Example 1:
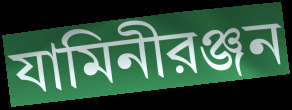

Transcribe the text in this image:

যামিনীরঞ্জন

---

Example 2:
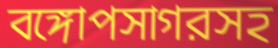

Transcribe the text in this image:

বঙ্গোপসাগরসহ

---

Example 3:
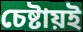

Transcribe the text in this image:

চেষ্টায়ই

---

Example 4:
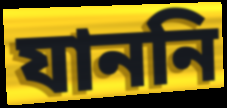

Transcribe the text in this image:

যাননি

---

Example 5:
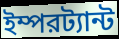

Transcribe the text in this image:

ইম্পরট্যান্ট